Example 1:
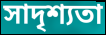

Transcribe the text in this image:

সাদৃশ্যতা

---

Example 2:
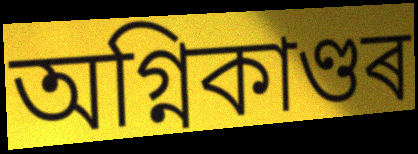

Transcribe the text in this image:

অগ্নিকাণ্ডৰ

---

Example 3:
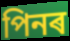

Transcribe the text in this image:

পিনৰ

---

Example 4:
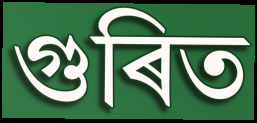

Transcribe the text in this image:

গুৰিত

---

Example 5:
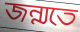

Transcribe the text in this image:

জন্মতে